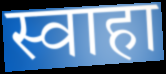
स्वाहा